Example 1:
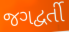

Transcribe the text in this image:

જગદ્વર્તી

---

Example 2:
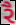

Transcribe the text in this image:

રૈ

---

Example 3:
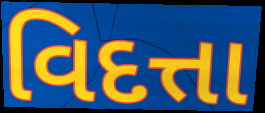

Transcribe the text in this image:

વિદત્તા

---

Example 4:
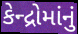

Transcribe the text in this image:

કેન્દ્રોમાંનું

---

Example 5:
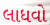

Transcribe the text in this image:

લાધવો